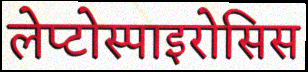
लेप्टोस्पाइरोसिस